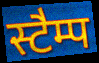
स्टैम्प